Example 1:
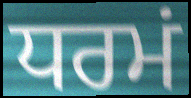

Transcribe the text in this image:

ਧਰਮਂ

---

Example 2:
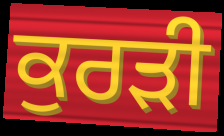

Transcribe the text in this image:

ਕੁਰੜੀ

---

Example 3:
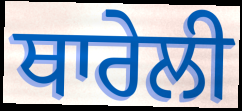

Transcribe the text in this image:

ਥਾਰੇਲੀ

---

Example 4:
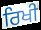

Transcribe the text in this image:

ਰਿਖੀ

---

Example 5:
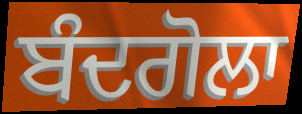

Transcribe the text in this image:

ਬੰਦਗੋਲਾ